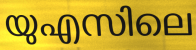
യുഎസിലെ